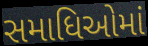
સમાધિઓમાં